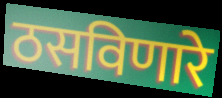
ठसविणारे